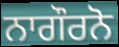
ਨਾਗੌਰਨੋ